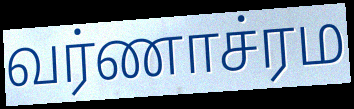
வர்ணாச்ரம